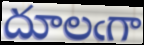
దూలఁగా